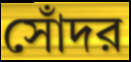
সোঁদর